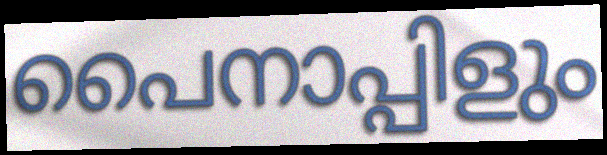
പൈനാപ്പിളും